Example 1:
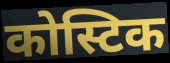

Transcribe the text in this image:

कोस्टिक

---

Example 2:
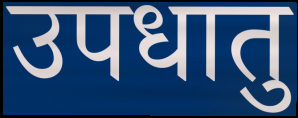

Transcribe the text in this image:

उपधातु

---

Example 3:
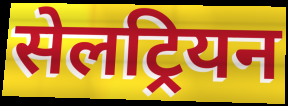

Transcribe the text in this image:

सेलट्रियन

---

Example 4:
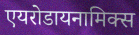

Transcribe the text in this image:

एयरोडायनामिक्स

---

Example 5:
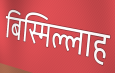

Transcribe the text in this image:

बिस्मिल्लाह